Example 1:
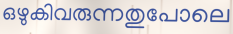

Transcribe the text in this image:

ഒഴുകിവരുന്നതുപോലെ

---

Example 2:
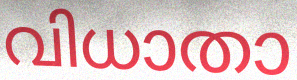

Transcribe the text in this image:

വിധാതാ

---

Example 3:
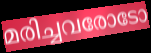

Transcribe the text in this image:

മരിച്ചവരോടോ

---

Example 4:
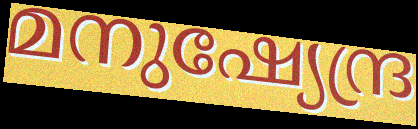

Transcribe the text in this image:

മനുഷ്യേന്ദ്ര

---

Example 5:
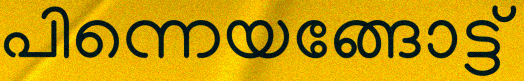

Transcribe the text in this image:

പിന്നെയങ്ങോട്ട്